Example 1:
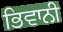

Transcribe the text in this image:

ਭਿਵਾਨੀ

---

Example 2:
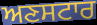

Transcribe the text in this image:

ਅਣਸਟਾਰ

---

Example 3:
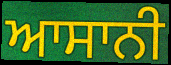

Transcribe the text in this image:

ਆਸਾਨੀ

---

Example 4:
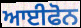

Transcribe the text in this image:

ਆਈਫੋਨ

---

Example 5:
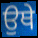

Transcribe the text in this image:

ਉਥੇ